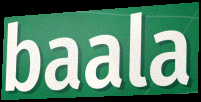
baala